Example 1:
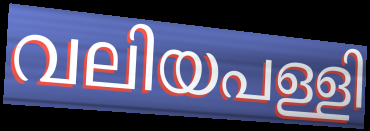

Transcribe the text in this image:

വലിയപള്ളി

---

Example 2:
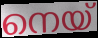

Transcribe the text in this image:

നെയ്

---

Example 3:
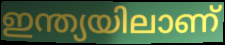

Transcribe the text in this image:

ഇന്ത്യയിലാണ്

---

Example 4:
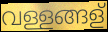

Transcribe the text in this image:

വള്ളങ്ങള്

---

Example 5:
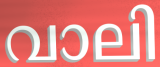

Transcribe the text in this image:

വാലി